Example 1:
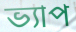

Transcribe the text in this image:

ভ্যাপ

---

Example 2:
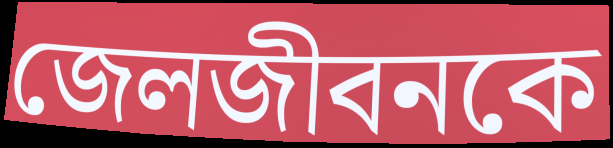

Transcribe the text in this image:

জেলজীবনকে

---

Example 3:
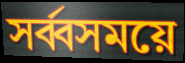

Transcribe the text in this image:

সর্ব্বসময়ে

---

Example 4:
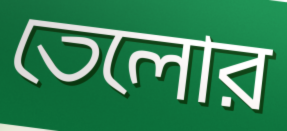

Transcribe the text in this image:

তেলোর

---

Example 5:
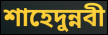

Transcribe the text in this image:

শাহেদুন্নবী